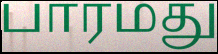
பாரமது